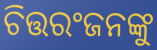
ଚିତ୍ତରଂଜନଙ୍କୁ